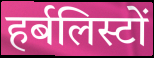
हर्बलिस्टों